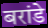
बरांडे